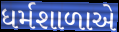
ધર્મશાળાએ